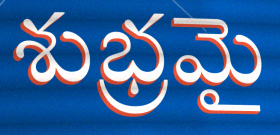
శుభ్రమై